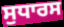
ਸੁਧਾਰਸ